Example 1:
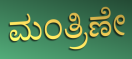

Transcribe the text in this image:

ಮಂತ್ರಿಣೇ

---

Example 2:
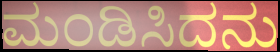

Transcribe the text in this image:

ಮಂಡಿಸಿದನು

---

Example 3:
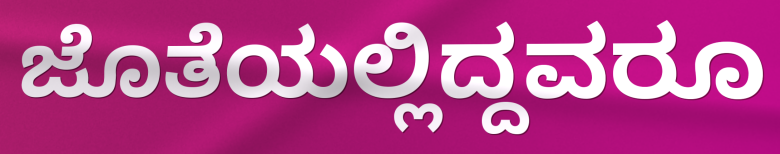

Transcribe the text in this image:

ಜೊತೆಯಲ್ಲಿದ್ದವರೂ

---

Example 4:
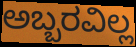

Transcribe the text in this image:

ಅಬ್ಬರವಿಲ್ಲ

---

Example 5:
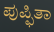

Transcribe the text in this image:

ಪುಪ್ಫಿತಾ